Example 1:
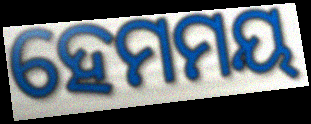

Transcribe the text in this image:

ହେମମୟ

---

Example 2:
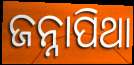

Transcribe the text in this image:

ଜନ୍ନାପିଥା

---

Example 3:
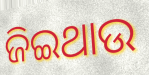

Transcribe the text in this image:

ଜିଇଥାଉ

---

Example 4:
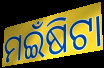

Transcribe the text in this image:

ମଇଁଷିଟା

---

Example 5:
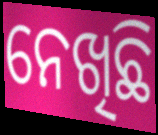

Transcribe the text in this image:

ନେଖିଛି